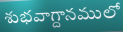
శుభవాగ్దానములో